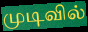
முடிவில்